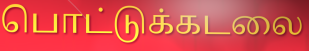
பொட்டுக்கடலை